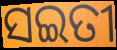
ସଇତୀ